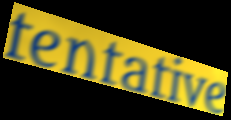
tentative